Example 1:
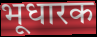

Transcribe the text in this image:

भूधारक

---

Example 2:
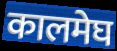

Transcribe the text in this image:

कालमेघ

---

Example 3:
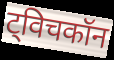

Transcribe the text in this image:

ट्विचकॉन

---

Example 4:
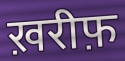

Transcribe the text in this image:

ख़रीफ़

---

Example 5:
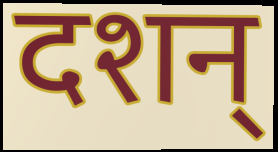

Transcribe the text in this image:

दशन्